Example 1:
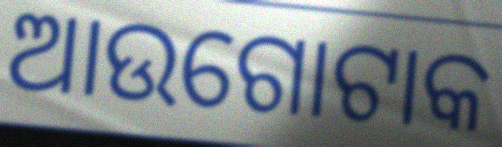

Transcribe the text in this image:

ଆଉଗୋଟାକ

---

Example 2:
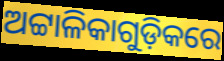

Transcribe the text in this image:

ଅଟ୍ଟାଳିକାଗୁଡ଼ିକରେ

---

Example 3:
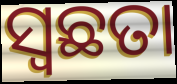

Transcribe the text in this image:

ସ୍ବଛତା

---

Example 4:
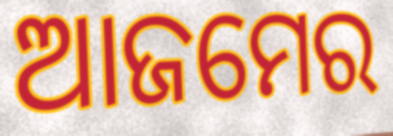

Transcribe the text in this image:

ଆଜମେର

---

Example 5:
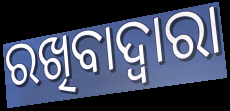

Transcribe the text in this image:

ରଖିବାଦ୍ୱାରା